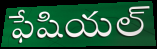
ఫేషియల్